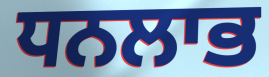
ਧਨਲਾਭ